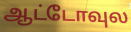
ஆட்டோவுல